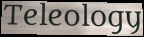
Teleology